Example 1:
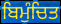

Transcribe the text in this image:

ਬਿਮੁੰਚਿਤ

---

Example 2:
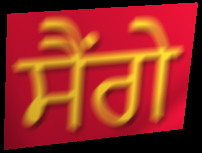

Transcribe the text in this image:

ਸੈਂਗੇ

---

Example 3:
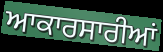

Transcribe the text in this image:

ਆਕਾਰਸਾਰੀਆਂ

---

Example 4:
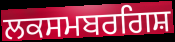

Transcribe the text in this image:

ਲਕਸਮਬਰਗਿਸ਼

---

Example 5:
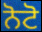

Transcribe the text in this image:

ਨੋਟੋ